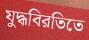
যুদ্ধবিরতিতে